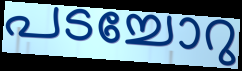
പടച്ചോറു